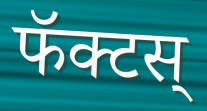
फॅक्टस्